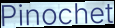
Pinochet